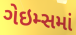
ગેઇમ્સમાં